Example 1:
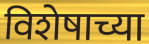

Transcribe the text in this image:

विशेषाच्या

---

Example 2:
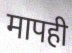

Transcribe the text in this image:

मापही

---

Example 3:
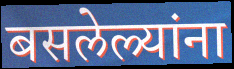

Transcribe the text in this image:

बसलेल्यांना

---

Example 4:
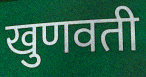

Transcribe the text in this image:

खुणवती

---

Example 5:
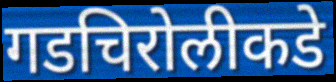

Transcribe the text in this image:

गडचिरोलीकडे